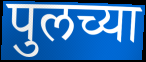
पुलच्या